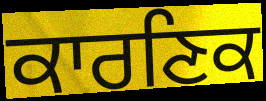
ਕਾਰਣਿਕ